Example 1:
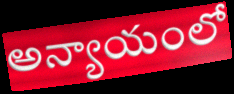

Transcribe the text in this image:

అన్యాయంలో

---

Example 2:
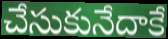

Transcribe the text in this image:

చేసుకునేదాకే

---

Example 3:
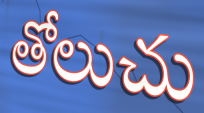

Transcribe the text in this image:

తోలుచు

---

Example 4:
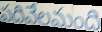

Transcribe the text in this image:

పదివేలమంది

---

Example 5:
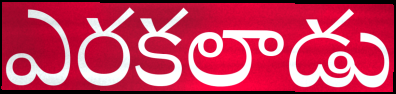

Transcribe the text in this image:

ఎరకలాడు